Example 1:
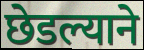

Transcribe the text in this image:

छेडल्याने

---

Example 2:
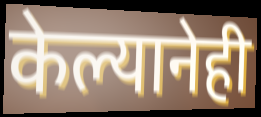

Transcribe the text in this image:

केल्यानेही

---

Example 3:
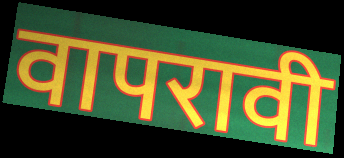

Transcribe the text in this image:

वापरावी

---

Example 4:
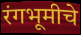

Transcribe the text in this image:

रंगभूमीचे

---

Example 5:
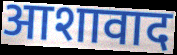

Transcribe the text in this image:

आशावाद